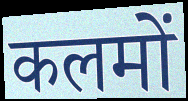
कलमों